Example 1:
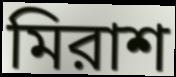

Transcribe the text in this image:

মিরাশ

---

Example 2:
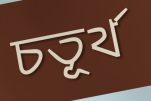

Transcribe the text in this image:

চতূর্থ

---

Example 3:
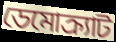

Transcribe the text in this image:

ডেমোক্র্যাট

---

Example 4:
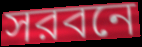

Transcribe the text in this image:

সরবনে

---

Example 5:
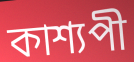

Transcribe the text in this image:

কাশ্যপী